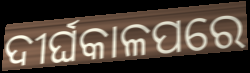
ଦୀର୍ଘକାଳପରେ